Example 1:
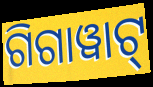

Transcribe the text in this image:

ଗିଗାୱାଟ୍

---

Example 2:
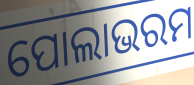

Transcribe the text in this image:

ପୋଲାଭରମ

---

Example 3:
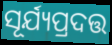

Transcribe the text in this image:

ସୂର୍ଯ୍ୟପ୍ରଦତ୍ତ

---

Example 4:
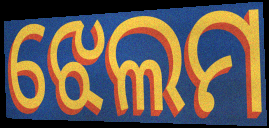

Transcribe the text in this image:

ଝେଲମ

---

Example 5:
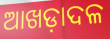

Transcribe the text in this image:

ଆଖଡ଼ାଦଳ